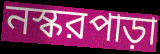
নস্করপাড়া